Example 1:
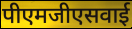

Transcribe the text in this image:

पीएमजीएसवाई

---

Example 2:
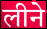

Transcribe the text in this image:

लीने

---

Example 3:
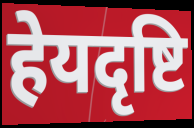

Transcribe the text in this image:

हेयदृष्टि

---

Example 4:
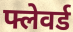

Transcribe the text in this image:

फ्लेवर्ड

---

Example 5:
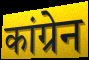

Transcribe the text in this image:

कांग्रेन